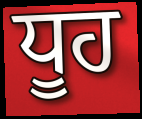
ਧੂਹ